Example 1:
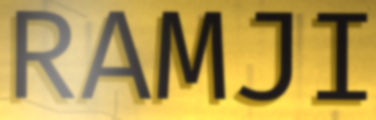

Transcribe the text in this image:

RAMJI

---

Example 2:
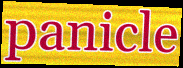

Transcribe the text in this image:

panicle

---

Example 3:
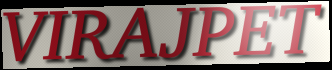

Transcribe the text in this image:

VIRAJPET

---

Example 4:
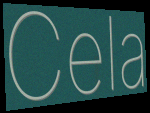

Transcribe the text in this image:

Cela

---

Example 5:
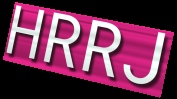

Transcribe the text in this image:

HRRJ